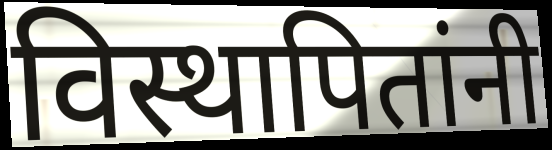
विस्थापितांनी